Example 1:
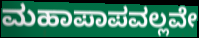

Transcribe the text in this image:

ಮಹಾಪಾಪವಲ್ಲವೇ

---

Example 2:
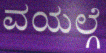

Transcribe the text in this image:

ವಯಲ್ಗೆ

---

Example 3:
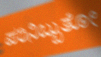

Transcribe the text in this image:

ಪರಿನಿಬ್ಬುತೋ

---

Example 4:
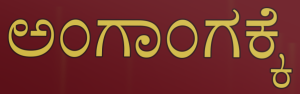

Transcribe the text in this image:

ಅಂಗಾಂಗಕ್ಕೆ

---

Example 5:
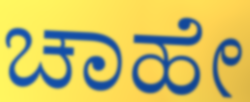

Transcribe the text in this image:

ಚಾಹೇ